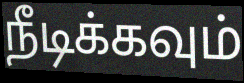
நீடிக்கவும்